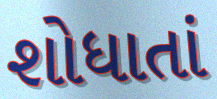
શોધાતાં